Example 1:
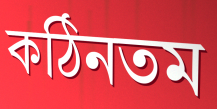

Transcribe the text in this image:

কঠিনতম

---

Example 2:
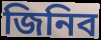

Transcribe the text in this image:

জিনিব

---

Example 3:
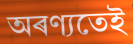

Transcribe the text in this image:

অৰণ্যতেই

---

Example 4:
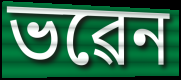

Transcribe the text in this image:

ভৱেন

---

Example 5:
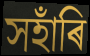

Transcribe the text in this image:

সহাঁৰি